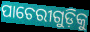
ପାଚେରୀଗୁଡ଼ିକୁ